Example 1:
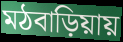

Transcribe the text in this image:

মঠবাড়িয়ায়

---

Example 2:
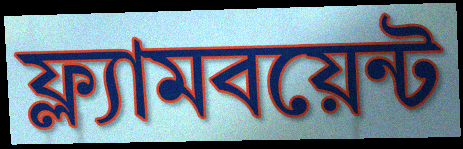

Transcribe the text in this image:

ফ্ল্যামবয়েন্ট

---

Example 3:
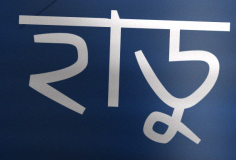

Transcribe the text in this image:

হাডু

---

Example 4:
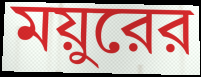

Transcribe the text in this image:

ময়ুরের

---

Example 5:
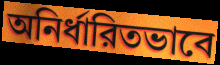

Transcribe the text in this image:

অনির্ধারিতভাবে